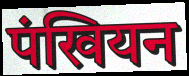
पंखियन